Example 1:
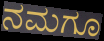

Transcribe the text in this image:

ನಮಗೂ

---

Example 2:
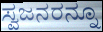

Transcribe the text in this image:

ಸ್ವಜನರನ್ನೂ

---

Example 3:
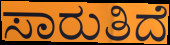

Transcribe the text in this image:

ಸಾರುತಿದೆ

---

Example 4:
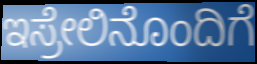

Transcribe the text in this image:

ಇಸ್ರೇಲಿನೊಂದಿಗೆ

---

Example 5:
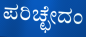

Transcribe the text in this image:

ಪರಿಚ್ಛೇದಂ